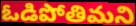
ఓడిపోతిమని